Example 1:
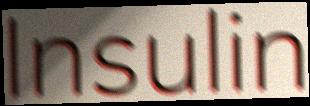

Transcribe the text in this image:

Insulin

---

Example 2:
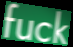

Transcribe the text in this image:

fuck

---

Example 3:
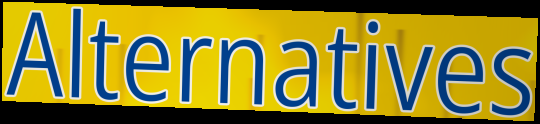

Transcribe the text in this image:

Alternatives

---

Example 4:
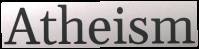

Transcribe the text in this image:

Atheism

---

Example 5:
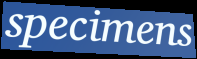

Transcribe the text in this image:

specimens